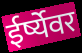
ईर्ष्येवर